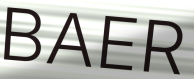
BAER